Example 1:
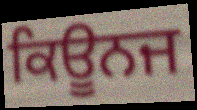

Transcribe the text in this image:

ਕਿਊਨਜ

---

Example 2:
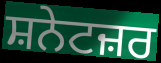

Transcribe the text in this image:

ਸ਼ਨੇਟਜ਼ਰ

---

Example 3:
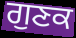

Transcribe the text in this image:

ਗੁਣਕ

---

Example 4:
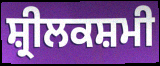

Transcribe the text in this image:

ਸ਼੍ਰੀਲਕਸ਼ਮੀ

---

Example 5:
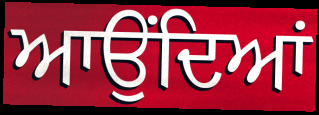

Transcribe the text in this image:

ਆਉਂਦਿਆਂ